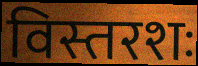
विस्तरशः